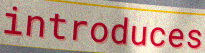
introduces